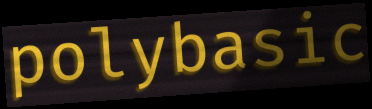
polybasic